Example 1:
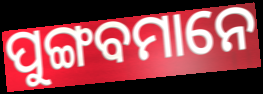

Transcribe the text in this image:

ପୁଙ୍ଗବମାନେ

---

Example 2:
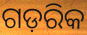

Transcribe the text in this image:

ଗଡ଼ରିକ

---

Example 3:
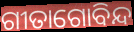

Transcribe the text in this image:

ଗୀତାଗୋବିନ୍ଦ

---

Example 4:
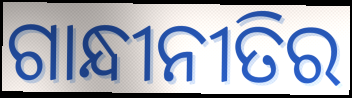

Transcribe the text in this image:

ଗାନ୍ଧୀନୀତିର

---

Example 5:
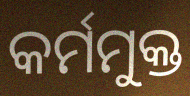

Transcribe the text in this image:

କର୍ମମୁକ୍ତ